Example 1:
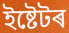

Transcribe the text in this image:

ইষ্টেটৰ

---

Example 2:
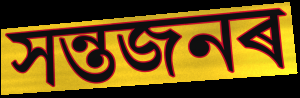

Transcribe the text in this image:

সন্তজনৰ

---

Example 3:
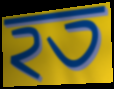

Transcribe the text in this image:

হত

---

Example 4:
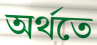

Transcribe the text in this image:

অৰ্থতে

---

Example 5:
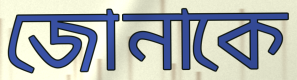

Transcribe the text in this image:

জোনাকে